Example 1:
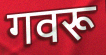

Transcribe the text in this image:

गवरू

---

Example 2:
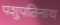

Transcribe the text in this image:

पशुपतिनाथ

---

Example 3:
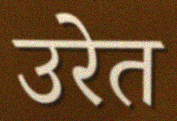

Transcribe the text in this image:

उरेत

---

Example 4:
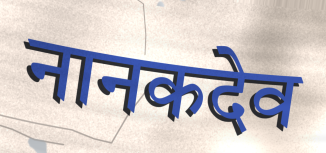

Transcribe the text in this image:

नानकदेव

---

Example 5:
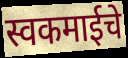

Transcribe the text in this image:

स्वकमाईचे